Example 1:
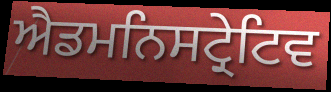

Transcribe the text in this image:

ਐਡਮਨਿਸਟ੍ਰੇਟਿਵ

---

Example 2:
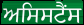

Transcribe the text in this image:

ਅਸਿਸਟੈਂਸ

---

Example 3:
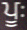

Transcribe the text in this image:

ਪੂਃ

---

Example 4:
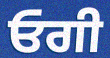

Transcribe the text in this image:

ਓਗੀ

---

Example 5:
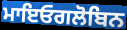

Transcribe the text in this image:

ਮਾਇਓਗਲੋਬਿਨ